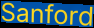
Sanford